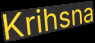
Krihsna